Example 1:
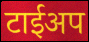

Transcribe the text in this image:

टाईअप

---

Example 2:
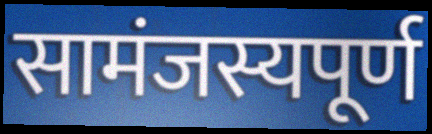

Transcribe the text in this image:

सामंजस्यपूर्ण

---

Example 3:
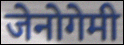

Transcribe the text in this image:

जेनोगेमी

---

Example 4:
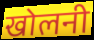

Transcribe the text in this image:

खोलनी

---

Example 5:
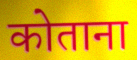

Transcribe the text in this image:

कोताना